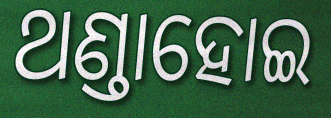
ଥଣ୍ଡାହୋଇ